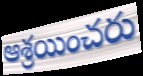
ఆశ్రయించరు